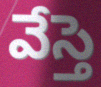
వేస్తె